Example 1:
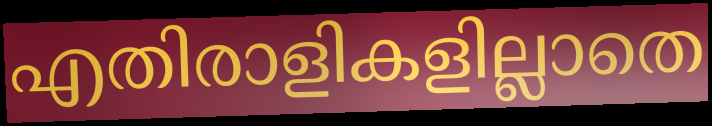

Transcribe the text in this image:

എതിരാളികളില്ലാതെ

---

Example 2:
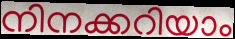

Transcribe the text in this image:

നിനക്കറിയാം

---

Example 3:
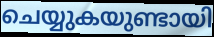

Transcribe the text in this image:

ചെയ്യുകയുണ്ടായി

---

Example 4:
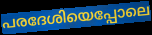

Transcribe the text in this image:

പരദേശിയെപ്പോലെ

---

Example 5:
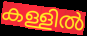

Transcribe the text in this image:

കള്ളിൽ